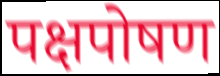
पक्षपोषण